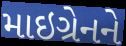
માઇગ્રેનને